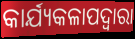
କାର୍ଯ୍ୟକଳାପଦ୍ୱାରା